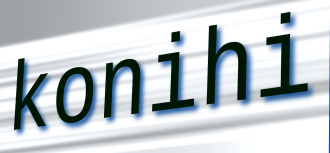
konihi